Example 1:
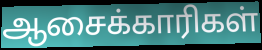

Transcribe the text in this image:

ஆசைக்காரிகள்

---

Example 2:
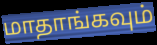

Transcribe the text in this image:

மாதாங்கவும்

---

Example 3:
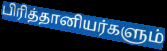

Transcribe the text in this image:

பிரித்தானியர்களும்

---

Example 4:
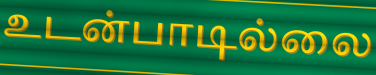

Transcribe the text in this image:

உடன்பாடில்லை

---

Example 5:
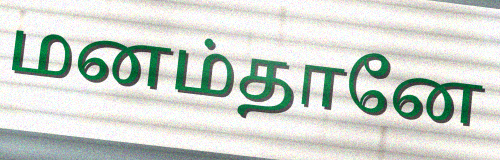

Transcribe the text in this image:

மனம்தானே